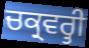
ਚਕ੍ਰਵਰ੍ਤੀ